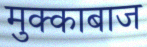
मुक्काबाज